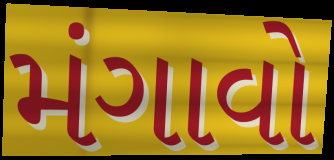
મંગાવો